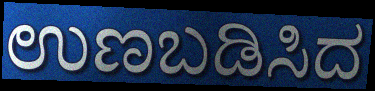
ಉಣಬಡಿಸಿದ